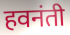
हवनंती